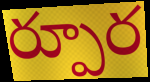
ర్పూర